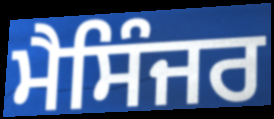
ਮੈਸਿੰਜਰ